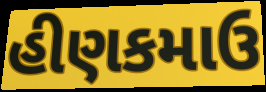
હીણકમાઉ